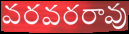
వరవరరావు